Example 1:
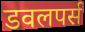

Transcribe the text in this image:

डवलपर्स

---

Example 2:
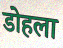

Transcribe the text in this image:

डोहला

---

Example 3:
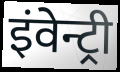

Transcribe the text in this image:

इंवेन्ट्री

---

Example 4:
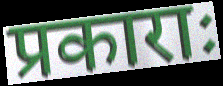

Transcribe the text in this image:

प्रकाराः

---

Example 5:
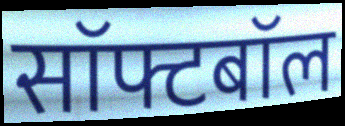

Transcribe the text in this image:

सॉफ्टबॉल